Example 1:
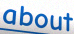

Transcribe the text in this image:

about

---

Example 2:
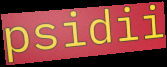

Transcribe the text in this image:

psidii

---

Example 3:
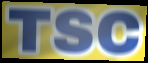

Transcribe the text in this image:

TSC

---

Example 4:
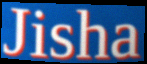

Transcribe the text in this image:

Jisha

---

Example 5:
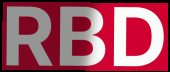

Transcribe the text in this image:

RBD